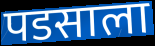
पडसाला